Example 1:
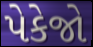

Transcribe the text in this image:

પેકેજો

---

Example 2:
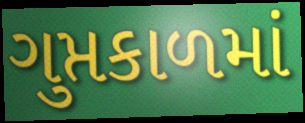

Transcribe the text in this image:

ગુપ્તકાળમાં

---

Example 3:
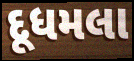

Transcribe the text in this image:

દૂધમલા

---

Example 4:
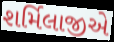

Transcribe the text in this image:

શર્મિલાજીએ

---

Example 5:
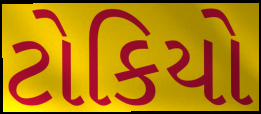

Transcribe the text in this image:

ટોકિયો